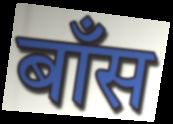
बाँस